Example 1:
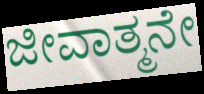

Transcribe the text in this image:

ಜೀವಾತ್ಮನೇ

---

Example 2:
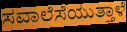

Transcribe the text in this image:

ಸವಾಲೆಸೆಯುತ್ತಾಳೆ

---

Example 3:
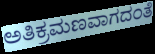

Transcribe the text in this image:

ಅತಿಕ್ರಮಣವಾಗದಂತೆ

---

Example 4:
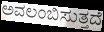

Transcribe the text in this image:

ಅವಲಂಬಿಸುತ್ತದೆ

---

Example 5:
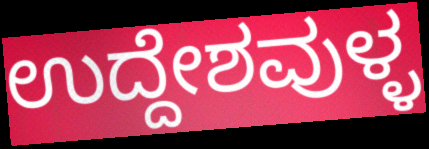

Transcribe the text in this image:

ಉದ್ದೇಶವುಳ್ಳ